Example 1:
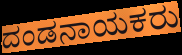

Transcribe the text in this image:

ದಂಡನಾಯಕರು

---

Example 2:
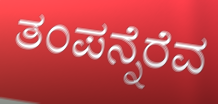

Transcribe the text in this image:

ತಂಪನ್ನೆರೆವ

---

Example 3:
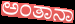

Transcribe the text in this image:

ಅಂತಾನಾ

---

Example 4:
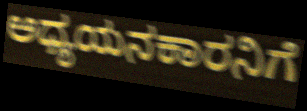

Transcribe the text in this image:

ಅಧ್ಯಯನಕಾರನಿಗೆ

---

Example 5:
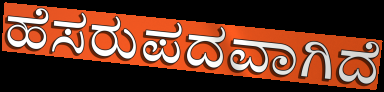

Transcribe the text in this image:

ಹೆಸರುಪದವಾಗಿದೆ